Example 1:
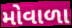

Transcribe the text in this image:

મોવાળા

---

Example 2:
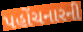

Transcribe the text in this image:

પહોંચનારની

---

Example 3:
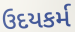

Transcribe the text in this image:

ઉદયકર્મ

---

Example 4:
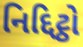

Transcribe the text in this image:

નિદ્દિટ્ઠો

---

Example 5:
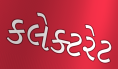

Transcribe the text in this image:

કલેક્ટરેટ